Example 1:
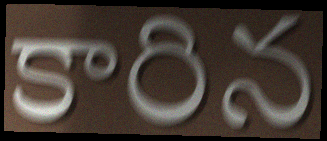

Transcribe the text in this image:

కారిన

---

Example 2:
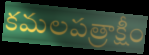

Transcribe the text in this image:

కమలపత్రాక్షీం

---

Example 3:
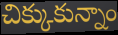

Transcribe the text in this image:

చిక్కుకున్నాం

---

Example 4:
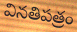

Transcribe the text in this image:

వినతిపత్రం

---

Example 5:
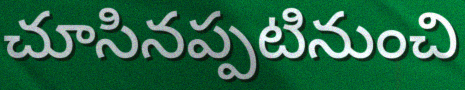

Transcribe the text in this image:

చూసినప్పటినుంచి